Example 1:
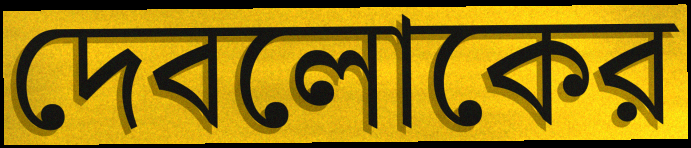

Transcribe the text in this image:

দেবলোকের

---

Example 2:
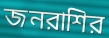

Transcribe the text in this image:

জনরাশির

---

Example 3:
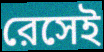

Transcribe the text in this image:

রেসেই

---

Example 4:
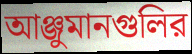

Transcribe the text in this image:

আঞ্জুমানগুলির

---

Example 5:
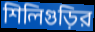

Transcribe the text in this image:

শিলিগুড়ির